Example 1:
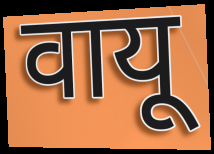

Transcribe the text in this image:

वायू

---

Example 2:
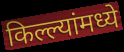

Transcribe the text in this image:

किल्ल्यांमध्ये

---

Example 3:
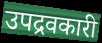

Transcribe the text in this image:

उपद्रवकारी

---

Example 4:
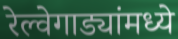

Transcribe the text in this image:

रेल्वेगाड्यांमध्ये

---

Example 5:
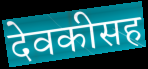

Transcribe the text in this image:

देवकीसह